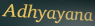
Adhyayana